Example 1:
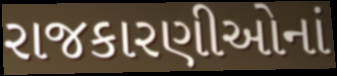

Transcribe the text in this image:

રાજકારણીઓનાં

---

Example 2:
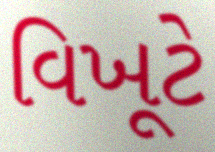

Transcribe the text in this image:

વિખૂટે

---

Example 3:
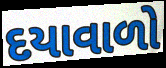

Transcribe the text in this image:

દયાવાળો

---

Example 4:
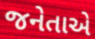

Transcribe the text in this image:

જનેતાએ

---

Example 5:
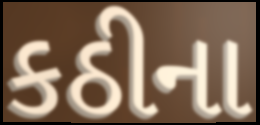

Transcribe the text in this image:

કઠીના